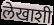
लेखाशी